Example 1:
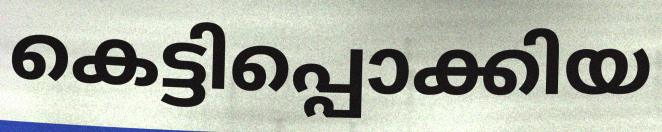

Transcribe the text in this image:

കെട്ടിപ്പൊക്കിയ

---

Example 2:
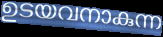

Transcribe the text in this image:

ഉടയവനാകുന്ന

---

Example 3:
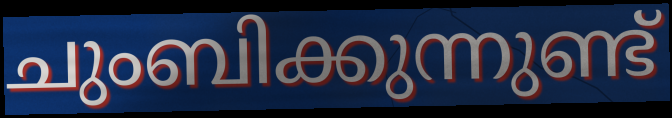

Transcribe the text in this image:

ചുംബിക്കുന്നുണ്ട്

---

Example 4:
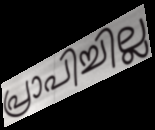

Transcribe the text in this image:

പ്രാപിച്ചില്ല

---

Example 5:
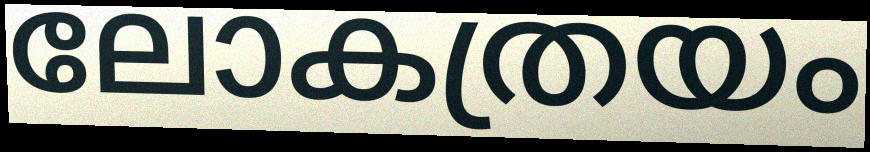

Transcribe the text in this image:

ലോകത്രയം